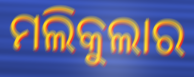
ମଲିକୁଲାର